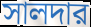
সালদার